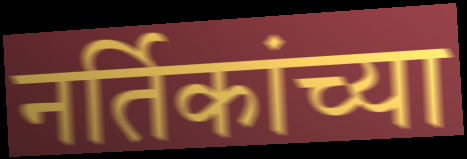
नर्तिकांच्या